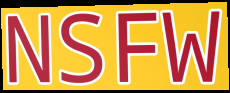
NSFW